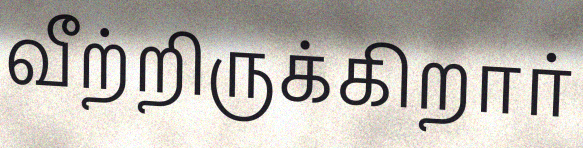
வீற்றிருக்கிறார்